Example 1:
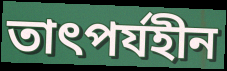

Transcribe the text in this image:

তাৎপর্যহীন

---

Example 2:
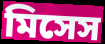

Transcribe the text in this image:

মিসেস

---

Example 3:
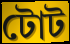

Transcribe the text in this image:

টোট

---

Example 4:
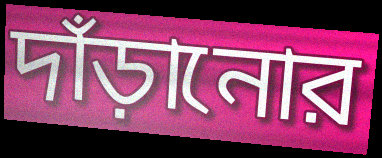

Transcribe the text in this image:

দাঁড়ানোর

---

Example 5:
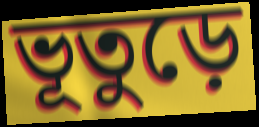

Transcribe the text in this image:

ভূতুড়ে